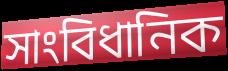
সাংবিধানিক